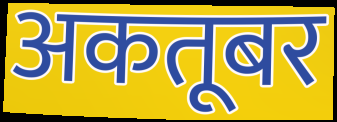
अकतूबर